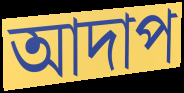
আদাপ